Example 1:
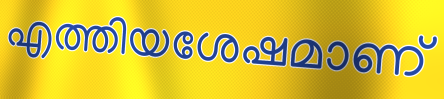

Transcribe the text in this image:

എത്തിയശേഷമാണ്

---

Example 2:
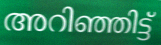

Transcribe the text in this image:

അറിഞ്ഞിട്ട്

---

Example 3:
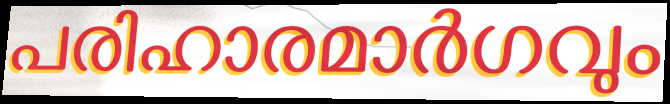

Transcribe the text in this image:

പരിഹാരമാർഗവും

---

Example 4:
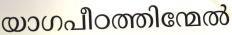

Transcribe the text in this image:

യാഗപീഠത്തിന്മേൽ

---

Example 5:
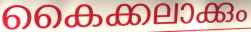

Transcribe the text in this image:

കൈക്കലാക്കും